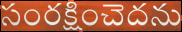
సంరక్షించెదను